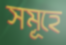
সমূহে